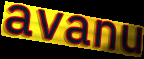
avanu